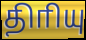
திரியு